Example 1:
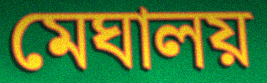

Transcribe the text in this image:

মেঘালয়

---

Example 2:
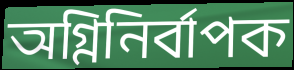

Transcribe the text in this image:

অগ্নিনিৰ্বাপক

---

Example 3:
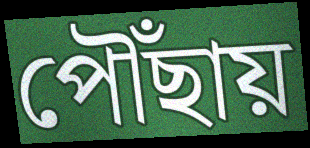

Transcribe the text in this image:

পৌঁছায়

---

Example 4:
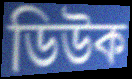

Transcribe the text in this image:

ডিউক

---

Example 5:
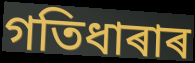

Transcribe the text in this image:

গতিধাৰাৰ